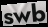
swb